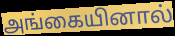
அங்கையினால்